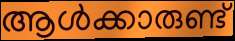
ആൾക്കാരുണ്ട്